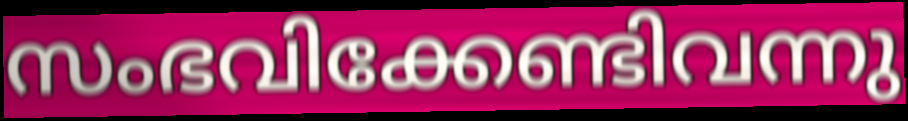
സംഭവിക്കേണ്ടിവന്നു